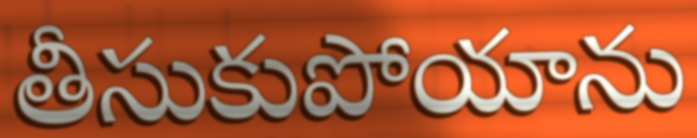
తీసుకుపోయాను